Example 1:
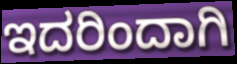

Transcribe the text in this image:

ಇದರಿಂದಾಗಿ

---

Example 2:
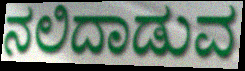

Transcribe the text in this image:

ನಲಿದಾಡುವ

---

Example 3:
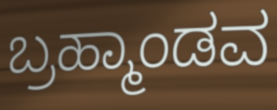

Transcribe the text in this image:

ಬ್ರಹ್ಮಾಂಡವ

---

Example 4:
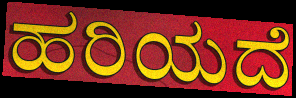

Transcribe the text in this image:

ಹರಿಯದೆ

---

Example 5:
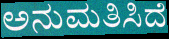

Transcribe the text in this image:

ಅನುಮತಿಸಿದೆ